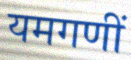
यमगणीं